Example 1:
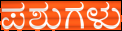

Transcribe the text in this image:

ಪಶುಗಳು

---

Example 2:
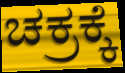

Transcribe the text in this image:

ಚಕ್ರಕ್ಕೆ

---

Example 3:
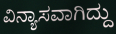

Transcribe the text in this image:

ವಿನ್ಯಾಸವಾಗಿದ್ದು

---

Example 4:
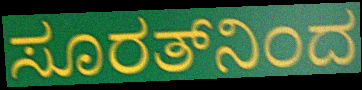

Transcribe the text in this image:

ಸೂರತ್‌ನಿಂದ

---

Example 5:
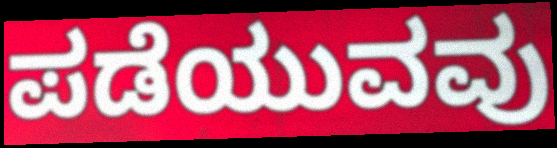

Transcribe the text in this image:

ಪಡೆಯುವವು